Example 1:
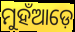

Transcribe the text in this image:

ମୁହଁଆଡ଼େ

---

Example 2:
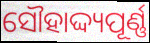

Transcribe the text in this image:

ସୌହାଦ୍ଦ୍ୟପୂର୍ଣ୍ଣ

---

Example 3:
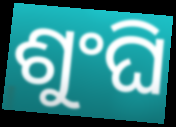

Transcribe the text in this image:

ଶୁଂଘି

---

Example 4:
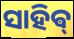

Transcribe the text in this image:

ସାହିଵ୍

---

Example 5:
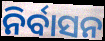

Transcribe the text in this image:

ନିର୍ବାସନ